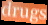
drugs